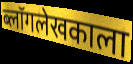
ब्लॉगलेखकाला